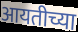
आयतीच्या